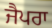
ਜੈਪਰਾ